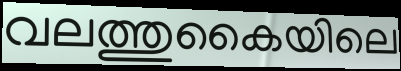
വലത്തുകൈയിലെ